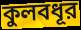
কুলবধূর